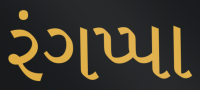
રંગપ્પા